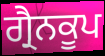
ਗ੍ਰੈਨਕੂਪ